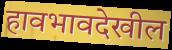
हावभावदेखील